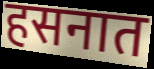
हसनात